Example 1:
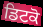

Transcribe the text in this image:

ਡਿਟਕੋ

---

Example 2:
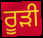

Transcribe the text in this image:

ਰੂੜੀ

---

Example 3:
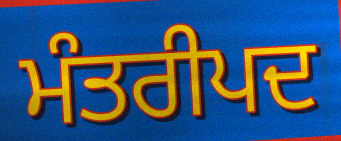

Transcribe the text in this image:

ਮੰਤਰੀਪਦ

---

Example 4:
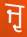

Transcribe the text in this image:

ਜ੍ਦ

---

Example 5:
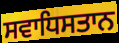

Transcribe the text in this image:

ਸਵਾਧਿਸਤਾਨ